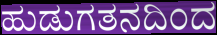
ಹುಡುಗತನದಿಂದ